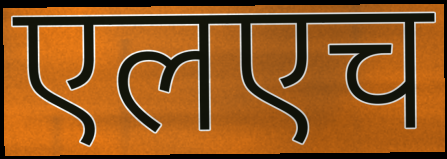
एलएच